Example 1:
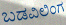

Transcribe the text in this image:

ಬಡವಿಲಿಂಗ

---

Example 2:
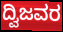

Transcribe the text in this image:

ದ್ವಿಜವರ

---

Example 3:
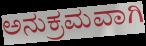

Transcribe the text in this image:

ಅನುಕ್ರಮವಾಗಿ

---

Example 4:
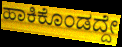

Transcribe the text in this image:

ಹಾಕಿಕೊಂಡದ್ದೇ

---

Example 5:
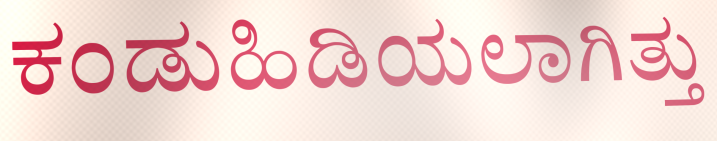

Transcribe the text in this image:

ಕಂಡುಹಿಡಿಯಲಾಗಿತ್ತು